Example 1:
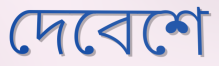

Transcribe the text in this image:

দেবেশে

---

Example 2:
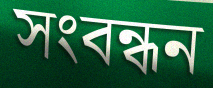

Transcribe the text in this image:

সংবন্ধন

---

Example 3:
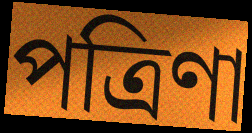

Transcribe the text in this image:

পত্রিণা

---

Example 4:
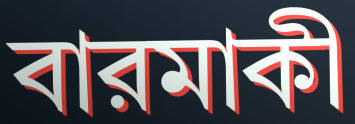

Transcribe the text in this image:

বারমাকী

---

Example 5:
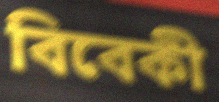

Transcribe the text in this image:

বিবেকী